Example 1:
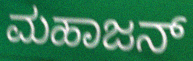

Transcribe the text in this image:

ಮಹಾಜನ್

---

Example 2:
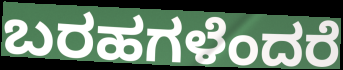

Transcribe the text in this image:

ಬರಹಗಳೆಂದರೆ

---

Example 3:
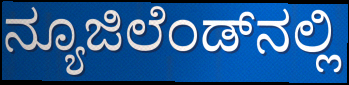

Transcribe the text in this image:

ನ್ಯೂಜಿಲೆಂಡ್‌ನಲ್ಲಿ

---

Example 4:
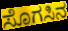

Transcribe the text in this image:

ಸೊಗಸಿನ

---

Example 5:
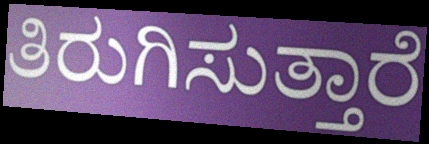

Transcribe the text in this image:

ತಿರುಗಿಸುತ್ತಾರೆ